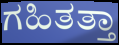
ಗಹಿತತ್ತಾ